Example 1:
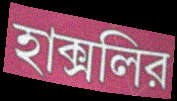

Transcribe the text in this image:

হাক্সলির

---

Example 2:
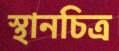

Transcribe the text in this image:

স্থানচিত্র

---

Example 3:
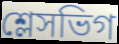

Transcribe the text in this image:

শ্লেসভিগ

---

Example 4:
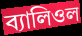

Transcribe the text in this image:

ব্যালিওল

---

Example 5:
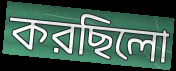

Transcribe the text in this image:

করছিলো